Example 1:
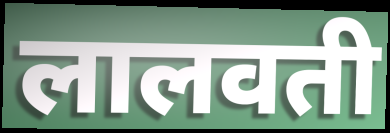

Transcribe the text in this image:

लालवती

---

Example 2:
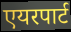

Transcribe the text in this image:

एयरपार्ट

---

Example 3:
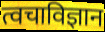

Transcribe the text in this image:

त्वचाविज्ञान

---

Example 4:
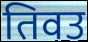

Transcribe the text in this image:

तिवउ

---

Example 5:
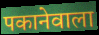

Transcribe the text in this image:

पकानेवाला